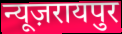
न्यूज़रायपुर